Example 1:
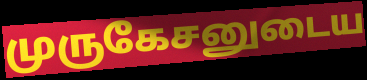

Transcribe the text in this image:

முருகேசனுடைய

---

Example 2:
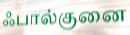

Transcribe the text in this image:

ஃபால்குனை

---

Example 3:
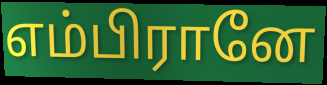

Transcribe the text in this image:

எம்பிரானே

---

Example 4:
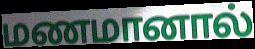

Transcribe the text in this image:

மணமானால்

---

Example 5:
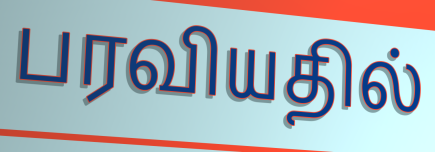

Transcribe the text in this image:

பரவியதில்